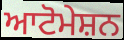
ਆਟੋਮੇਸ਼ਨ